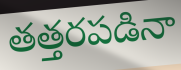
తత్తరపడినా